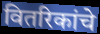
वितरिकांचे